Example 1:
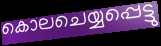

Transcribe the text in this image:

കൊലചെയ്യപ്പെട്ടു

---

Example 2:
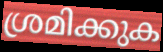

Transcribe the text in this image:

ശ്രമിക്കുക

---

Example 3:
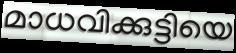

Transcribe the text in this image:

മാധവിക്കുട്ടിയെ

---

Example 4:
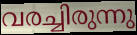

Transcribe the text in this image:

വരച്ചിരുന്നു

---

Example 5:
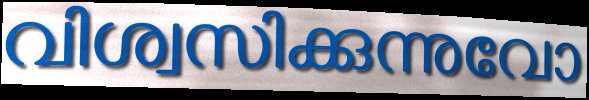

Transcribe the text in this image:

വിശ്വസിക്കുന്നുവോ